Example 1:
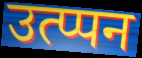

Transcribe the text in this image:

उत्प्पन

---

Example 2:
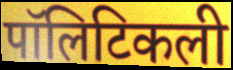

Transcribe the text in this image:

पॉलिटिकली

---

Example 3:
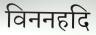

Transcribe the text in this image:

विननहदि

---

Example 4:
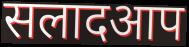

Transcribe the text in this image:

सलादआप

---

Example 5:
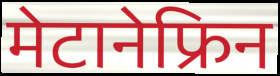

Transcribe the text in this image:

मेटानेफ्रिन